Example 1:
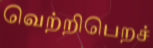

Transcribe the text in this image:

வெற்றிபெறச்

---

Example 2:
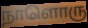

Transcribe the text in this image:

நாளொரு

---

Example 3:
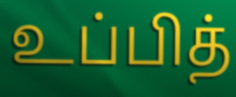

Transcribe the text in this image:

உப்பித்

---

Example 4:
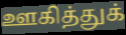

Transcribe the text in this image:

ஊகித்துக்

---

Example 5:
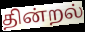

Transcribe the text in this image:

தின்றல்